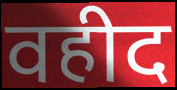
वहीद